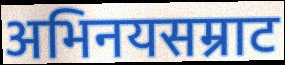
अभिनयसम्राट